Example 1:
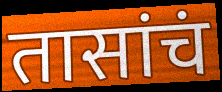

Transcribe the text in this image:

तासांचं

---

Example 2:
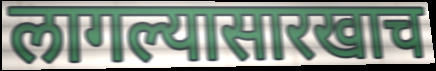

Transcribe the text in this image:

लागल्यासारखाच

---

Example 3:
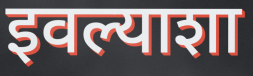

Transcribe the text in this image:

इवल्याशा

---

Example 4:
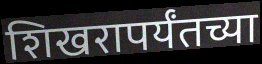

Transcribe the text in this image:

शिखरापर्यंतच्या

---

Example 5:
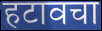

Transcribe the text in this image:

हटावचा